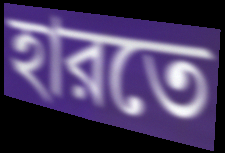
হারতে